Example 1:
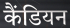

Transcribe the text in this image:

कैंडियन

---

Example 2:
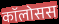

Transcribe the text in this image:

कॉलोसस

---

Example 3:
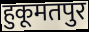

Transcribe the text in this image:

हुकूमतपुर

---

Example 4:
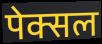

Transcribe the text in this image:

पेक्सल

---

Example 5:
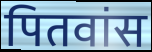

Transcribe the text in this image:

पितवांस